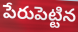
పేరుపెట్టిన